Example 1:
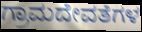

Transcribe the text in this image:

ಗ್ರಾಮದೇವತೆಗಳ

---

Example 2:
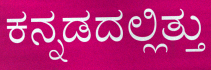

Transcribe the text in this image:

ಕನ್ನಡದಲ್ಲಿತ್ತು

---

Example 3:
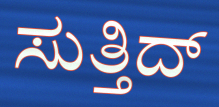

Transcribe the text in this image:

ಸುತ್ತಿದ್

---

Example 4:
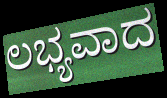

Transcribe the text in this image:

ಲಭ್ಯವಾದ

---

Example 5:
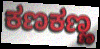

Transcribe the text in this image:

ಕಣಕಣ್ಣ